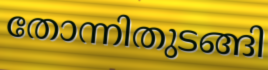
തോന്നിതുടങ്ങി